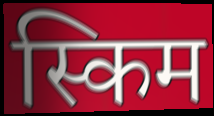
स्किम